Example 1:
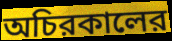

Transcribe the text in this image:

অচিরকালের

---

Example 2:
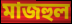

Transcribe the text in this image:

মাজহুল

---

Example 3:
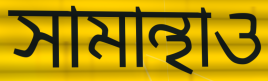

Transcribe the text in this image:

সামান্থাও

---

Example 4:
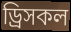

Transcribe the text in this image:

ড্রিসকল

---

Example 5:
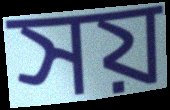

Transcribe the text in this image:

সয়